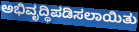
ಅಭಿವೃದ್ಧಿಪಡಿಸಲಾಯಿತು